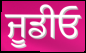
ਜੂਡੀਓ